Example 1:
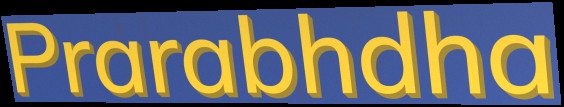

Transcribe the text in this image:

Prarabhdha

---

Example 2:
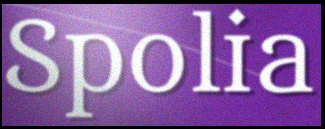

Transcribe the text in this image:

Spolia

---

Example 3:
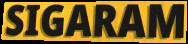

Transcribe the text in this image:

SIGARAM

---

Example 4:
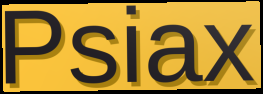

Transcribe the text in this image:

Psiax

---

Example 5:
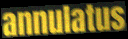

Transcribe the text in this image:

annulatus